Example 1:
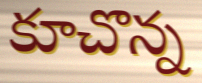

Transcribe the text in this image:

కూచొన్న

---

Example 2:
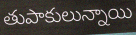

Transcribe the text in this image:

తుపాకులున్నాయి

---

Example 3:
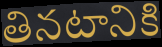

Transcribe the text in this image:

తినటానికి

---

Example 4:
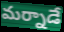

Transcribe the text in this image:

మర్నాడే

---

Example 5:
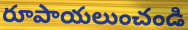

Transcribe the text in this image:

రూపాయలుంచండి